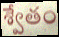
శ్వేతం